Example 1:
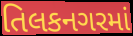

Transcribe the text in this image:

તિલકનગરમાં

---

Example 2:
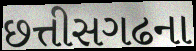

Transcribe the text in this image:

છત્તીસગઢના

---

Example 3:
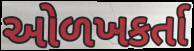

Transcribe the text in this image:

ઓળખકર્તા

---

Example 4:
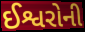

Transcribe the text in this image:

ઈશ્વરોની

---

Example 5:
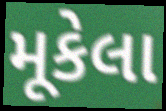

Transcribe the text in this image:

મૂકેલા